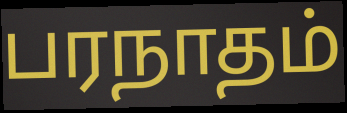
பரநாதம்